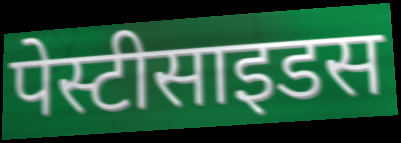
पेस्टीसाइडस